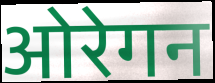
ओरेगन